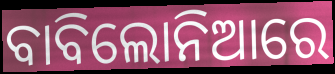
ବାବିଲୋନିଆରେ